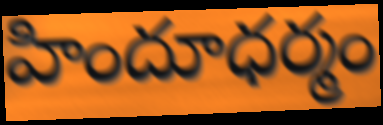
హిందూధర్మం